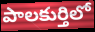
పాలకుర్తిలో